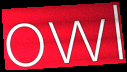
owl